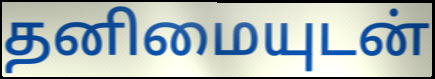
தனிமையுடன்